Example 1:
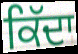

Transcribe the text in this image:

ਕਿੱਦਾ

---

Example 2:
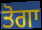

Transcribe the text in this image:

ਤੋਗਾ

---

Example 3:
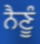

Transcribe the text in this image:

ਨੈਣੂੰ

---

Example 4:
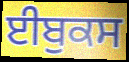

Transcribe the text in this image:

ਈਬੁਕਸ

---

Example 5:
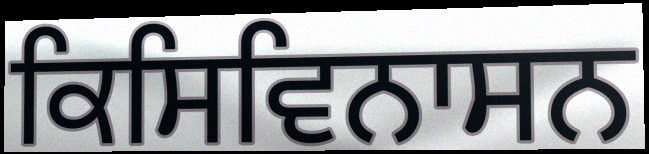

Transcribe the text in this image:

ਕਿਸਿਵਿਨਾਸਨ